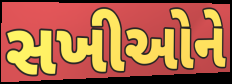
સખીઓને